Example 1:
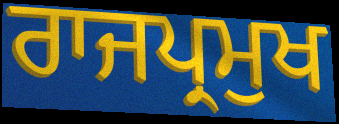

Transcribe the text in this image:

ਰਾਜਪ੍ਰਮੁਖ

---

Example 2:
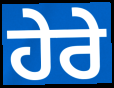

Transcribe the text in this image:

ਹੇਰੇ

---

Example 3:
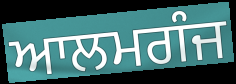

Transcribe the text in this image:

ਆਲਮਗੰਜ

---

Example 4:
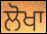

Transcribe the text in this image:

ਲੋਖਾ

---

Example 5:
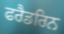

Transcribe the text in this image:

ਫਰੈਡਰਿਨ